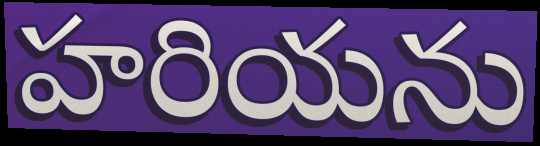
హరియను